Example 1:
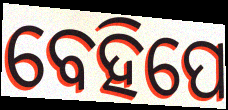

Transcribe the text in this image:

ବେହିପେ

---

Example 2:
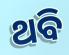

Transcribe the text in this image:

ଥବି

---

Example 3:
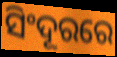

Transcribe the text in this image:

ସିଂଦୂରରେ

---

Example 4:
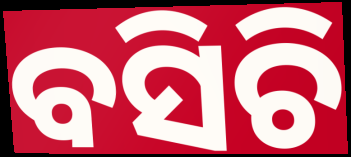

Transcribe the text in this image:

ବସିଚି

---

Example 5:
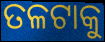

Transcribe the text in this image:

ତଳଟାକୁ